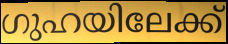
ഗുഹയിലേക്ക്